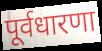
पूर्वधारणा